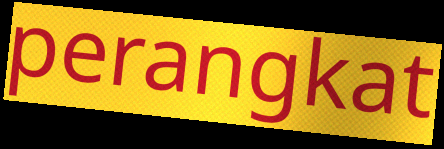
perangkat